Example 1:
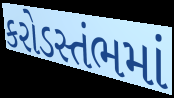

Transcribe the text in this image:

કરોડસ્તંભમાં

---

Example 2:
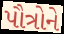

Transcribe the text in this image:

પૌત્રોને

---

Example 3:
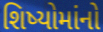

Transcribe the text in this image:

શિષ્યોમાંનો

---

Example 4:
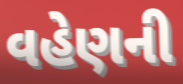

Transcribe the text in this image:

વહેણની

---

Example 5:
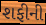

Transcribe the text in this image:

શફીની